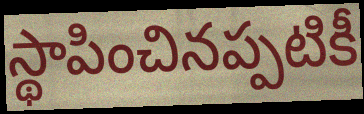
స్థాపించినప్పటికీ